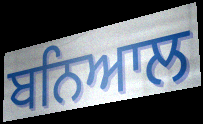
ਬਨਿਆਲ